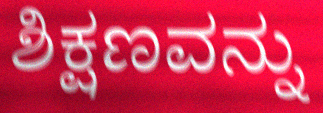
ಶಿಕ್ಷಣವನ್ನು